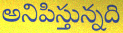
అనిపిస్తున్నది